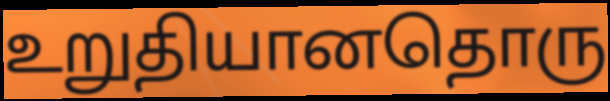
உறுதியானதொரு